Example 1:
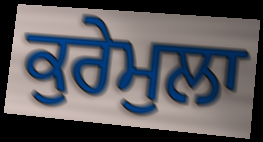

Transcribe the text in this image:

ਕੁਰੇਮੁਲਾ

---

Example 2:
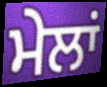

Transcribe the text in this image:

ਮੇਲਾਂ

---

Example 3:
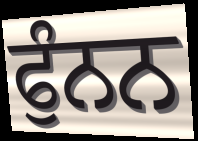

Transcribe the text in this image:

ਫੁੰਨਨ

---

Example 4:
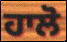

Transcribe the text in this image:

ਹਾਲੋ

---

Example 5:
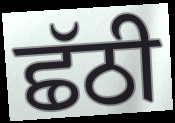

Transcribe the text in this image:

ਛੱਠੀ